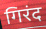
गिरंद